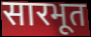
सारभूत